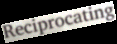
Reciprocating